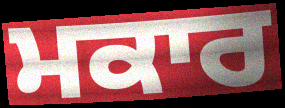
ਮਕਾਰ